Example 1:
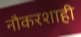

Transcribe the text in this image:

नौकरशाही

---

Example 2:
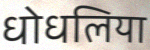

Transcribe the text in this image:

धोधलिया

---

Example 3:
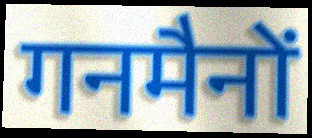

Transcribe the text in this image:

गनमैनों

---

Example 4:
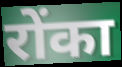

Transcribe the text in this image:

रोंका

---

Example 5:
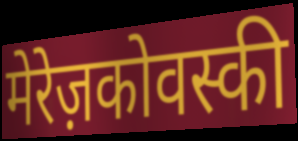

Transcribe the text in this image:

मेरेज़कोवस्की